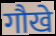
गौखे